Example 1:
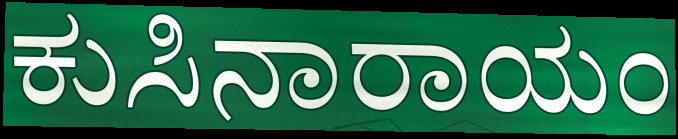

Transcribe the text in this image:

ಕುಸಿನಾರಾಯಂ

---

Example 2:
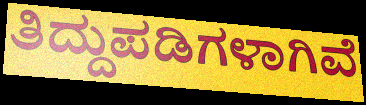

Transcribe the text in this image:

ತಿದ್ದುಪಡಿಗಳಾಗಿವೆ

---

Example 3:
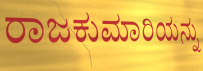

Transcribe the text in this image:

ರಾಜಕುಮಾರಿಯನ್ನು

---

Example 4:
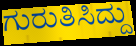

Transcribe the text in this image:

ಗುರುತಿಸಿದ್ದು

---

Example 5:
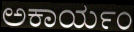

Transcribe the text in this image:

ಅಕಾರ್ಯಂ